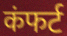
कंफर्ट